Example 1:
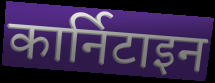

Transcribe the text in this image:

कार्निटाइन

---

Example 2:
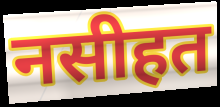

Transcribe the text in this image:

नसीहत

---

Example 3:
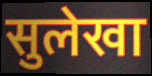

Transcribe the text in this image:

सुलेखा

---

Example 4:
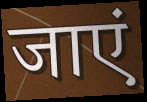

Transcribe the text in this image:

जाएं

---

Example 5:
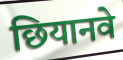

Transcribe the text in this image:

छियानवे